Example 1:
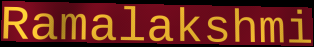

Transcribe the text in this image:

Ramalakshmi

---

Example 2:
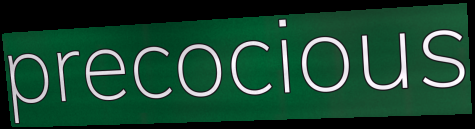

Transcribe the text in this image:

precocious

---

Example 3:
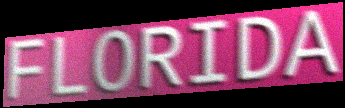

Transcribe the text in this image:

FLORIDA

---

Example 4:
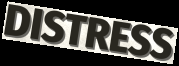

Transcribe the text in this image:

DISTRESS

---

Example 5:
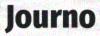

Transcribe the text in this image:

Journo